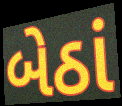
બેઠાં